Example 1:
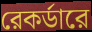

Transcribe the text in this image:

রেকর্ডারে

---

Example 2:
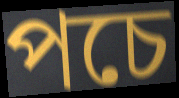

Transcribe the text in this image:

পচে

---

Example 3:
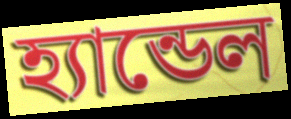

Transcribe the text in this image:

হ্যান্ডেল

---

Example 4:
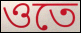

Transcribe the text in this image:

ওতে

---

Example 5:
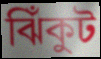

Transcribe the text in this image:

ঝিঁকুট